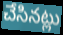
చేసినట్లు